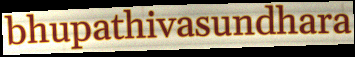
bhupathivasundhara